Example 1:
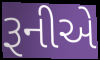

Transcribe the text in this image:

રૂનીએ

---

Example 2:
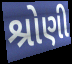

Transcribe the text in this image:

શ્રોણી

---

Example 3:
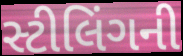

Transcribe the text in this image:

સ્ટીલિંગની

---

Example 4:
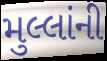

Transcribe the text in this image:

મુલ્લાંની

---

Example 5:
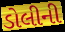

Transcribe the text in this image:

ડોલીની